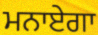
ਮਨਾਏਗਾ